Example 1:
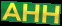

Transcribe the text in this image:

AHH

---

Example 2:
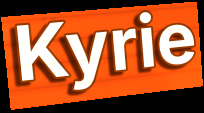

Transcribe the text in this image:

Kyrie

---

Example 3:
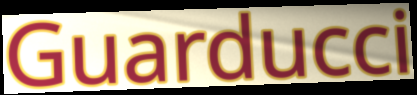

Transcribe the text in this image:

Guarducci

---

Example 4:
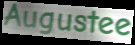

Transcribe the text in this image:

Augustee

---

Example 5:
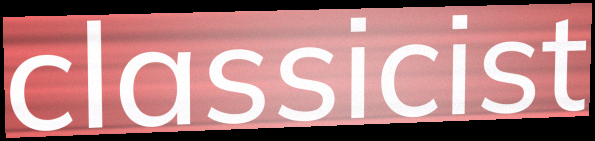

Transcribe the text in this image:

classicist